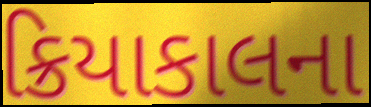
ક્રિયાકાલના